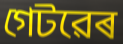
গেটৱেৰ